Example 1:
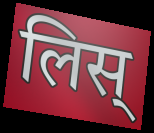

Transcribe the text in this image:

लिस्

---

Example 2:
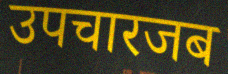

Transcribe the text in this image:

उपचारजब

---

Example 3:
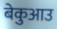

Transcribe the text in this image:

बेकुआउ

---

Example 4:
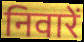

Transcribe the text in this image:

निवारें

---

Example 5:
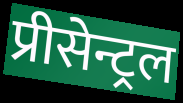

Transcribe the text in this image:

प्रीसेन्ट्रल